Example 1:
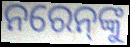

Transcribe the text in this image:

ନରେନ୍‍ଙ୍କୁ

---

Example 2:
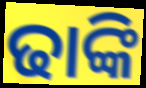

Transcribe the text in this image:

ଢାଙ୍କି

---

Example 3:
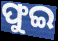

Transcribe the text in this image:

ଫୁଇ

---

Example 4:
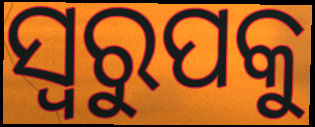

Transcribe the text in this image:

ସ୍ଵରୁପକୁ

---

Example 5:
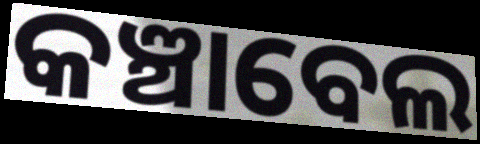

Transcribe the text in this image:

କଞ୍ଚାବେଲ